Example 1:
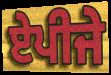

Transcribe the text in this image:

ਏਪੀਜੇ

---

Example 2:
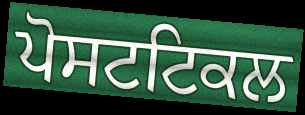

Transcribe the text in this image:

ਪੋਸਟਟਿਕਲ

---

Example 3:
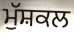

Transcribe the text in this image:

ਮੁੱਸ਼ਕਲ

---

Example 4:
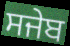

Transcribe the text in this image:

ਸਜੇਬ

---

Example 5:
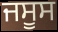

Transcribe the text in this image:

ਜਸੂਸ